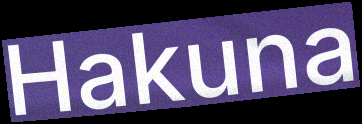
Hakuna